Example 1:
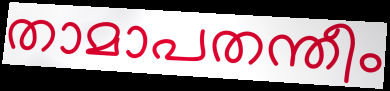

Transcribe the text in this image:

താമാപതന്തീം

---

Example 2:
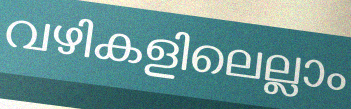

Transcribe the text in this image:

വഴികളിലെല്ലാം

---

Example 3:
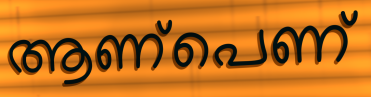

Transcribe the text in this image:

ആണ്പെണ്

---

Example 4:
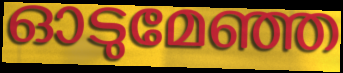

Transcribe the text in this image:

ഓടുമേഞ്ഞ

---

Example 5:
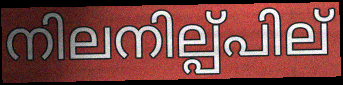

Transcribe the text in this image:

നിലനില്പ്പില്